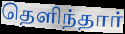
தெளிந்தார்